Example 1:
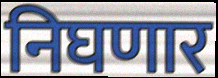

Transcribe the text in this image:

निघणार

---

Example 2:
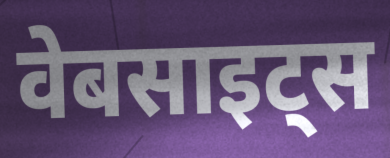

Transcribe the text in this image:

वेबसाइट्स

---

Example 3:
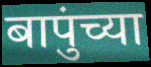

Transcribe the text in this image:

बापुंच्या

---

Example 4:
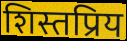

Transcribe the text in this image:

शिस्तप्रिय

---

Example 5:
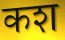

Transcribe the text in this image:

कश